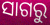
ସାଗରୁ